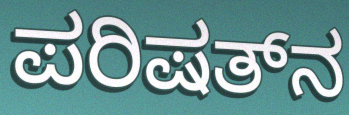
ಪರಿಷತ್‌ನ